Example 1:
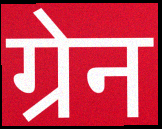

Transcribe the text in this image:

ग्रेन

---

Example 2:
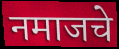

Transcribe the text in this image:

नमाजचे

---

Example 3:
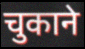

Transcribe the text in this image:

चुकाने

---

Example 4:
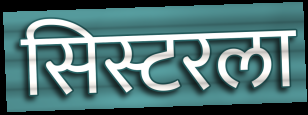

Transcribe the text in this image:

सिस्टरला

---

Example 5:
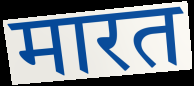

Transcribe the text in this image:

मारत